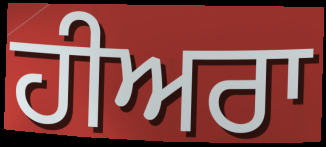
ਹੀਅਰਾ